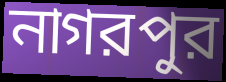
নাগরপুর